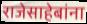
राजेसाहेबांना